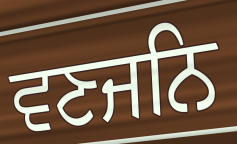
ਵਣਜਨਿ